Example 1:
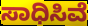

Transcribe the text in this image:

ಸಾಧಿಸಿವೆ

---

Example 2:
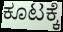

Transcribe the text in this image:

ಕೂಟಕ್ಕೆ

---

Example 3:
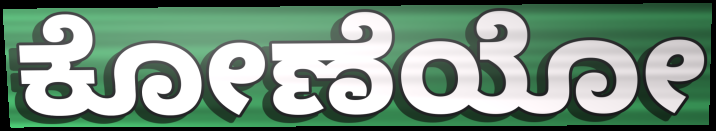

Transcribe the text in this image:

ಕೋಣೆಯೋ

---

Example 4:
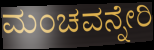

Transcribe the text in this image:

ಮಂಚವನ್ನೇರಿ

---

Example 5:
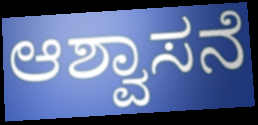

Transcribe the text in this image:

ಆಶ್ವಾಸನೆ